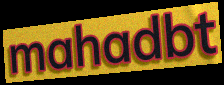
mahadbt